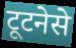
टूटनेसे